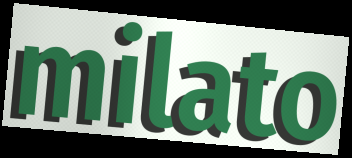
milato